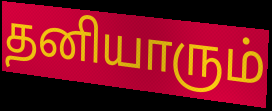
தனியாரும்